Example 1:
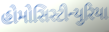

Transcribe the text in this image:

હોમોસિસ્ટીન્યુરિયા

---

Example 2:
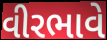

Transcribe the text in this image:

વીરભાવે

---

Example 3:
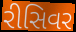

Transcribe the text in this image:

રીસિવર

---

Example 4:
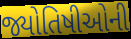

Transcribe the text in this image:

જ્યોતિષીઓની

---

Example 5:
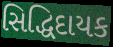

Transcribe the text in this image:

સિદ્ધિદાયક